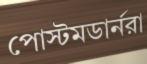
পোস্টমডার্নরা